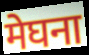
मेघना